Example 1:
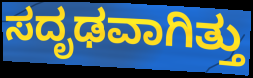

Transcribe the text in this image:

ಸದೃಢವಾಗಿತ್ತು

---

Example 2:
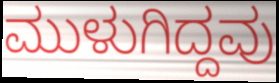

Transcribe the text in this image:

ಮುಳುಗಿದ್ದವು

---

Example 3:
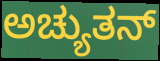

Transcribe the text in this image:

ಅಚ್ಯುತನ್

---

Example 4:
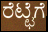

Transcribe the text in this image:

ರೆಟ್ಟೆಗೆ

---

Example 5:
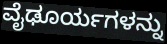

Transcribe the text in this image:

ವೈಢೂರ್ಯಗಳನ್ನು